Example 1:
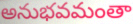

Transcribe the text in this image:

అనుభవమంతా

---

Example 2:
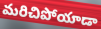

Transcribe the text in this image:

మరిచిపోయాడా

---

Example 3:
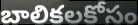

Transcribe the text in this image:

బాలికలకోసం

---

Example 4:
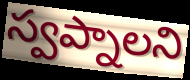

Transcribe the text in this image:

స్వప్నాలని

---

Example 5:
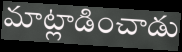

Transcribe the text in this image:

మాట్లాడించాడు